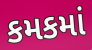
કમકમાં